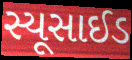
સ્યૂસાઈડ